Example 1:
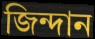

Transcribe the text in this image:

জিন্দান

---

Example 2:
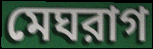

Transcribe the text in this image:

মেঘরাগ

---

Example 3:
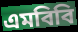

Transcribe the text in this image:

এমবিবি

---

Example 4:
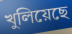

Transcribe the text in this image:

খুলিয়েছে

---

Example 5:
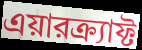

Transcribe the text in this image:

এয়ারক্র্যাফ্ট